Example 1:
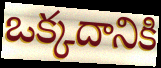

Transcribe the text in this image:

ఒక్కదానికి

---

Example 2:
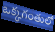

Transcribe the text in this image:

ఒక్కగంతులో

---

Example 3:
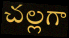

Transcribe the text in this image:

చల్లగా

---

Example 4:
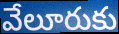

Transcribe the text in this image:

వేలూరుకు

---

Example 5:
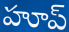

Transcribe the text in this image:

హూప్